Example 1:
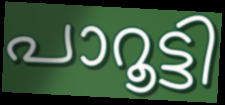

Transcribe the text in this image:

പാറൂട്ടി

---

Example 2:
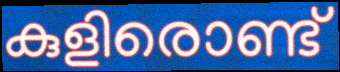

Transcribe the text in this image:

കുളിരൊണ്ട്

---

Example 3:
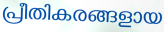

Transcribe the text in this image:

പ്രീതികരങ്ങളായ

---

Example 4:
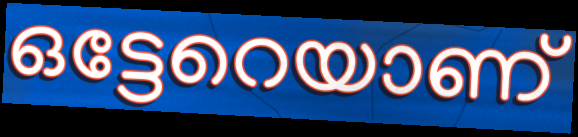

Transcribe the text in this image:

ഒട്ടേറെയാണ്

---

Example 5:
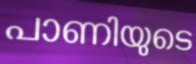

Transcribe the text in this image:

പാണിയുടെ